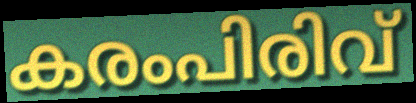
കരംപിരിവ്